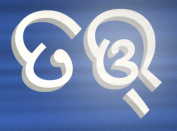
ତତ୍ତ୍